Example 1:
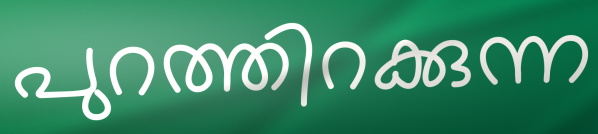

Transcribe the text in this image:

പുറത്തിറക്കുന്ന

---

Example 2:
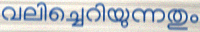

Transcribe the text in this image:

വലിച്ചെറിയുന്നതും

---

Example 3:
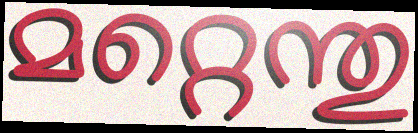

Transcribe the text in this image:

മറ്റെന്തു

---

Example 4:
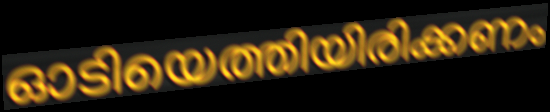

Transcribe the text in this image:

ഓടിയെത്തിയിരിക്കണം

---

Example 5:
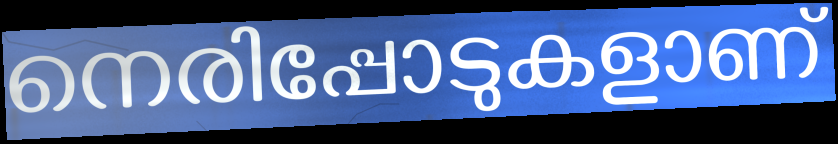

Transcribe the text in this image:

നെരിപ്പോടുകളാണ്